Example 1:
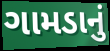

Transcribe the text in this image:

ગામડાનું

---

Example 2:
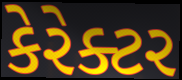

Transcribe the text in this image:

કેરેક્ટર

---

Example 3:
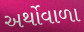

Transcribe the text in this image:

અર્થોવાળા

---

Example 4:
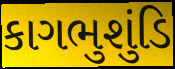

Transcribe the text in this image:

કાગભુશુંડિ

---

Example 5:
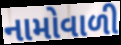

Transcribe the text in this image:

નામોવાળી